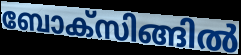
ബോക്സിങ്ങിൽ